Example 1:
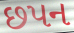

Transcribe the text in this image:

છપન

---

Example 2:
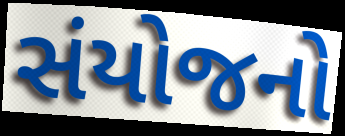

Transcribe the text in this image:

સંયોજનો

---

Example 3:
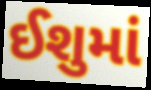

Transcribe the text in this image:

ઈશુમાં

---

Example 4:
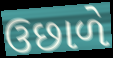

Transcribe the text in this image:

ઉછાળે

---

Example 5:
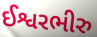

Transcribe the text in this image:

ઈશ્વરભીરુ